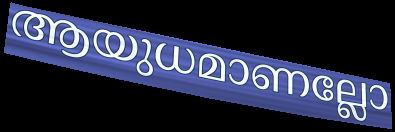
ആയുധമാണല്ലോ